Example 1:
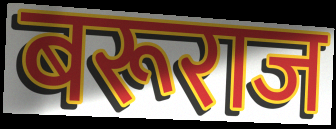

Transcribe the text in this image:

बरूराज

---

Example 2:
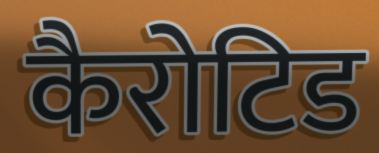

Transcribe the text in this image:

कैरोटिड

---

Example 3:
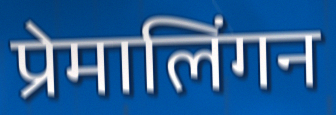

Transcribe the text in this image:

प्रेमालिंगन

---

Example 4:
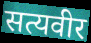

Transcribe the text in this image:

सत्यवीर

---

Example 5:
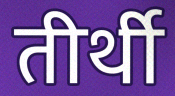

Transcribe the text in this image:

तीर्थी